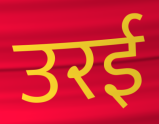
उरई